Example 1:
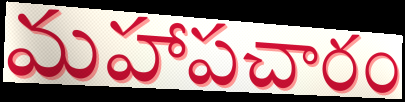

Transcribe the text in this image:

మహాపచారం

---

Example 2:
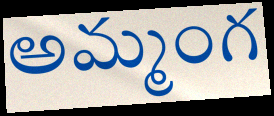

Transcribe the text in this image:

అమ్మంగ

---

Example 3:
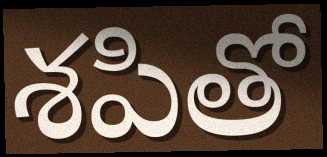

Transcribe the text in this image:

శపితో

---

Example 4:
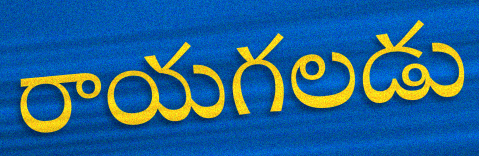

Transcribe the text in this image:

రాయగలడు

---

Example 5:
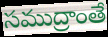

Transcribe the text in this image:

సముద్రాంతే